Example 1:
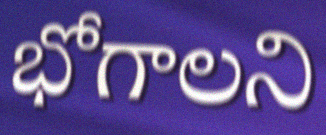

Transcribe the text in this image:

భోగాలని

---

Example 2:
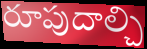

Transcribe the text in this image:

రూపుదాల్చి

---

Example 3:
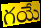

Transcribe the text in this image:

గయే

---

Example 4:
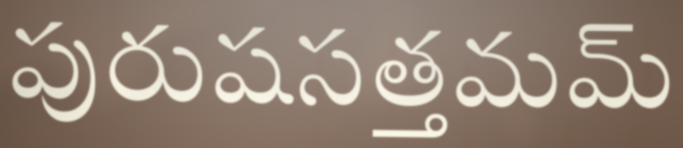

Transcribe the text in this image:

పురుషసత్తమమ్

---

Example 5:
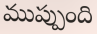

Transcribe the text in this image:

ముప్పుంది